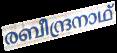
രബീന്ദ്രനാഥ്